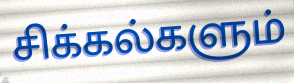
சிக்கல்களும்